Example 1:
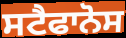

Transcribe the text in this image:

ਸਟੈਫਾਨੋਸ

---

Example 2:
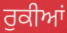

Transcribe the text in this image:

ਰੁਕੀਆਂ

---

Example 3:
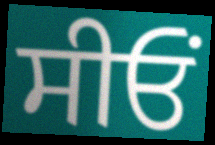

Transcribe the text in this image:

ਸੀਓਂ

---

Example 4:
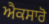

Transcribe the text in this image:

ਐਕਸਾਰੋ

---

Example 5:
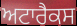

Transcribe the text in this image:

ਅਟਾਰੈਕਸ